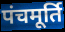
पंचमूर्ति